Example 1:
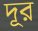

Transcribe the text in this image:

দূর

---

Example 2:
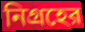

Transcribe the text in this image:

নিগ্রহের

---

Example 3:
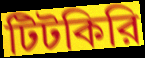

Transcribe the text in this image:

টিটকিরি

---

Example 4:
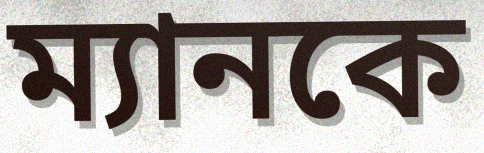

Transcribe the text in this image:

ম্যানকে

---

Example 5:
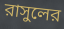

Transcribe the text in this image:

রাসুলের